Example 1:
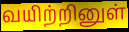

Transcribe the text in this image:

வயிற்றினுள்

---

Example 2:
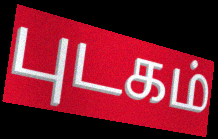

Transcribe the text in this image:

புடகம்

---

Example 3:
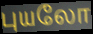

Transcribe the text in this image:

புயலோ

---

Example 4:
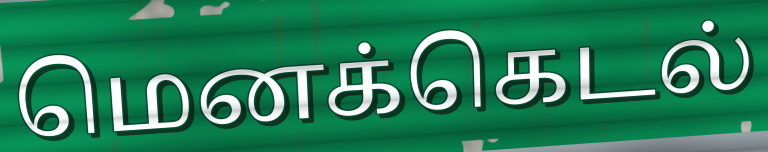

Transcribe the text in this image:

மெனக்கெடல்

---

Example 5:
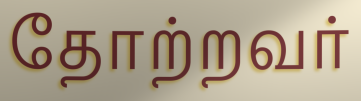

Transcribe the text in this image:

தோற்றவர்